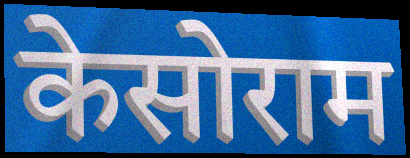
केसोराम